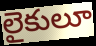
లైకులూ